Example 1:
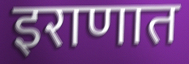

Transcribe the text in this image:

इराणात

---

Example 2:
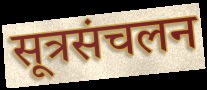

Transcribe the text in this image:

सूत्रसंचलन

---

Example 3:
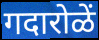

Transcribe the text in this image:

गदारोळें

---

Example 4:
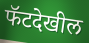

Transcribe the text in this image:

फॅटदेखील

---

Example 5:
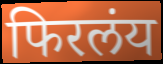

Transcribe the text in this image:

फिरलंय